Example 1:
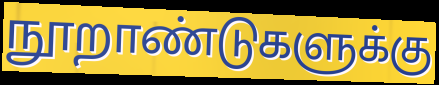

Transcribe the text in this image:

நூறாண்டுகளுக்கு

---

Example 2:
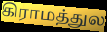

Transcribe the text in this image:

கிராமத்துல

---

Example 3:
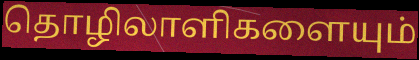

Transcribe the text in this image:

தொழிலாளிகளையும்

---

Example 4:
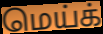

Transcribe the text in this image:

மெய்க்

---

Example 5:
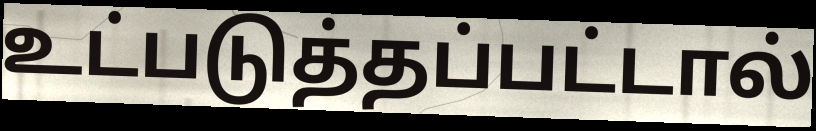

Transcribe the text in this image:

உட்படுத்தப்பட்டால்